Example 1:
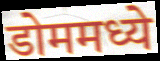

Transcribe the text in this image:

डोममध्ये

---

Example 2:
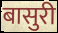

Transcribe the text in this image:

बासुरी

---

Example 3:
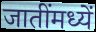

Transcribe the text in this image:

जातींमध्यें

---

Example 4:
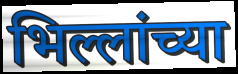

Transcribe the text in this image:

भिल्लांच्या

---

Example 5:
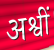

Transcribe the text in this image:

अश्वीं